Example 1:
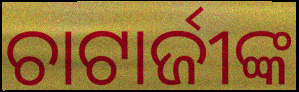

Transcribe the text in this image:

ଚାଟାର୍ଜୀଙ୍କ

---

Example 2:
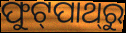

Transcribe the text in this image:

ଫୁଟ୍‌ପାଥ୍‌ରୁ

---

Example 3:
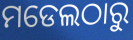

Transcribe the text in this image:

ମଡେଲଠାରୁ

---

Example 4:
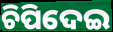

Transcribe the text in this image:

ଚିପିଦେଇ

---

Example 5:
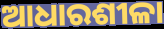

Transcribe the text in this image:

ଆଧାରଶୀଳା